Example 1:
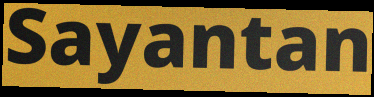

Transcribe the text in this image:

Sayantan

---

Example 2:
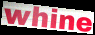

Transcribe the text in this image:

whine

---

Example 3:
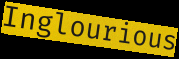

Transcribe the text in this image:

Inglourious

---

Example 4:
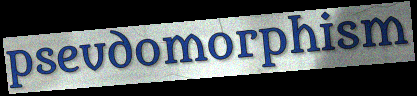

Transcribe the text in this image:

pseudomorphism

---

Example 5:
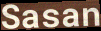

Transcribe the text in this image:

Sasan